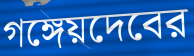
গঙ্গেয়দেবের